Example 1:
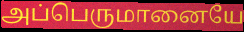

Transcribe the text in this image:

அப்பெருமானையே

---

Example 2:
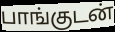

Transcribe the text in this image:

பாங்குடன்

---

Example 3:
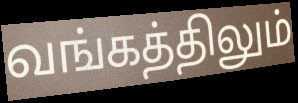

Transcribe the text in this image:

வங்கத்திலும்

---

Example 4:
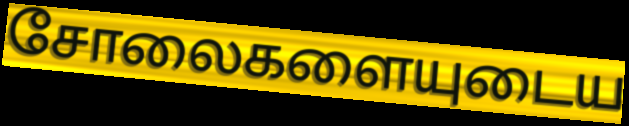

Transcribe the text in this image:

சோலைகளையுடைய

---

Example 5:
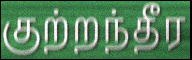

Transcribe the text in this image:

குற்றந்தீர